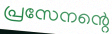
പ്രസേനന്റെ